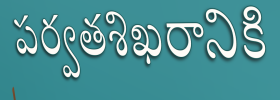
పర్వతశిఖరానికి